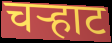
चऱ्हाट